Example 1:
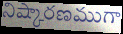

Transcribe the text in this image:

నిష్కారణముగా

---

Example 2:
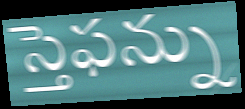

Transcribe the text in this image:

స్తెఫన్ను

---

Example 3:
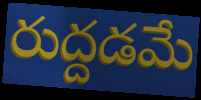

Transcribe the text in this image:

రుద్దడమే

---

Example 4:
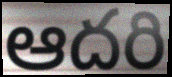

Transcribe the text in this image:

ఆదరి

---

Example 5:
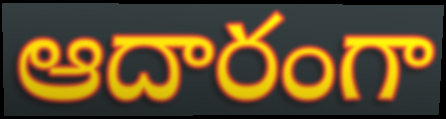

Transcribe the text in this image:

ఆదారంగా